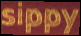
sippy